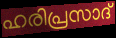
ഹരിപ്രസാദ്